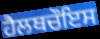
ਹੈਲਥਚੌਇਸ